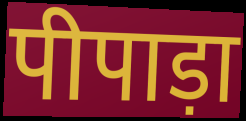
पीपाड़ा